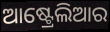
ଆଷ୍ଟ୍ରେଲିଆର